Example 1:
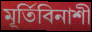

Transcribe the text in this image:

মূর্তিবিনাশী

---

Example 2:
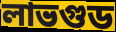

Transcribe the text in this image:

লাভগুড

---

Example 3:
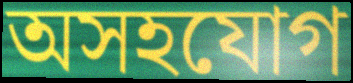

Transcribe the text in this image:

অসহযোগ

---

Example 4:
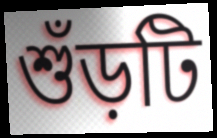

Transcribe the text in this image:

শুঁড়টি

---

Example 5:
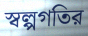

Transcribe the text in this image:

স্বল্পগতির